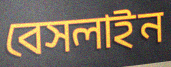
বেসলাইন